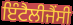
ਇੰਟੈਲੀਜੈਂਸੀ